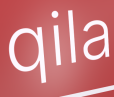
qila